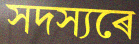
সদস্যৰে